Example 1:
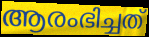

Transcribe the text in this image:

ആരംഭിച്ചത്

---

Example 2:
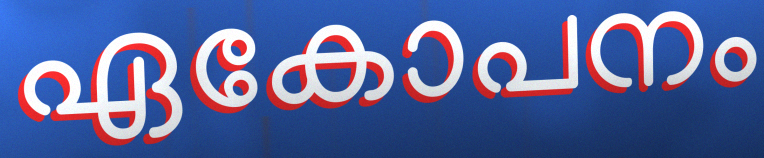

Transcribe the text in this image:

ഏകോപനം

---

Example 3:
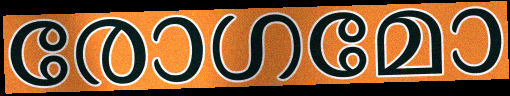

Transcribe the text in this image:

രോഗമോ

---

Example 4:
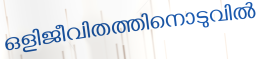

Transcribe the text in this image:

ഒളിജീവിതത്തിനൊടുവിൽ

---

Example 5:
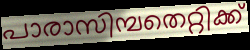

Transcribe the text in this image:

പാരാസിമ്പതെറ്റിക്ക്